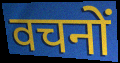
वचनों